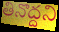
తినొద్దని